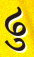
ઢુ